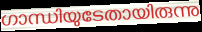
ഗാന്ധിയുടേതായിരുന്നു